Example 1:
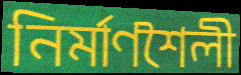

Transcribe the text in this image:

নিৰ্মাণশৈলী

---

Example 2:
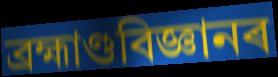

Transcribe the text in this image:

ব্ৰহ্মাণ্ডবিজ্ঞানৰ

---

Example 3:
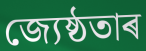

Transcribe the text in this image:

জ্যেষ্ঠতাৰ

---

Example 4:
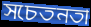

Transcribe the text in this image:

সচেতনতা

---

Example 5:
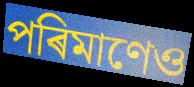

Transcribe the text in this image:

পৰিমাণেও